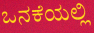
ಒನಕೆಯಲ್ಲಿ